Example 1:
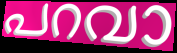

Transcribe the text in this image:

പറവാ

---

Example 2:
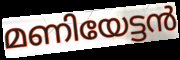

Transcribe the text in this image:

മണിയേട്ടൻ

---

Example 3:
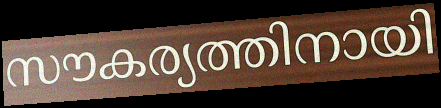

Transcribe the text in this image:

സൗകര്യത്തിനായി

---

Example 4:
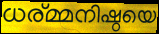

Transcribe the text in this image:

ധര്മ്മനിഷ്ഠയെ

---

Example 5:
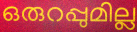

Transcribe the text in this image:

ഒരുറപ്പുമില്ല